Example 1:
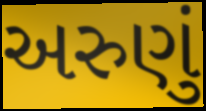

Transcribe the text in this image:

અરુણું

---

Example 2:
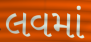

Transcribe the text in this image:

લવમાં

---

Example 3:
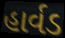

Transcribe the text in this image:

હાર્વડ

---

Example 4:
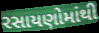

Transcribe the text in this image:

રસાયણોમાંથી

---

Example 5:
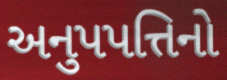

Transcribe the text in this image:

અનુપપત્તિનો